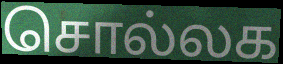
சொல்லக